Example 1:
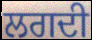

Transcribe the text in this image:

ਲਗਦੀ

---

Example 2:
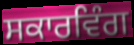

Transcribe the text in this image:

ਸਕਾਰਵਿੰਗ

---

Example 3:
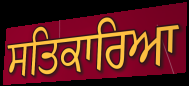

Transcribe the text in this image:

ਸਤਿਕਾਰਿਆ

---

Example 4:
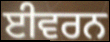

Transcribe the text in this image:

ਈਵਰਨ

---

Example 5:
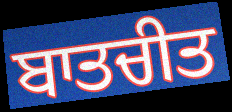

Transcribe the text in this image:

ਬਾਤਚੀਤ